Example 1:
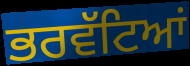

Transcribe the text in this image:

ਭਰਵੱਟਿਆਂ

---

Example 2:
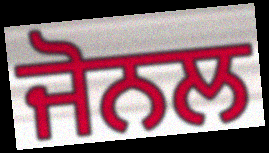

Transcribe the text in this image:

ਜੋਨਲ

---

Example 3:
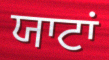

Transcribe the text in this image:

ਯਾਟਾਂ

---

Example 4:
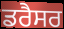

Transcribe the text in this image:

ਡਰੈਸਰ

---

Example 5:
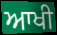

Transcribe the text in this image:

ਆਖੀ